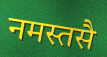
नमस्तसै